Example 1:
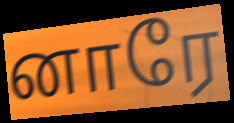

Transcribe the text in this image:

னாரே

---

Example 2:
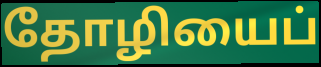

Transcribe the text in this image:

தோழியைப்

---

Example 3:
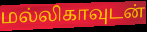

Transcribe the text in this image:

மல்லிகாவுடன்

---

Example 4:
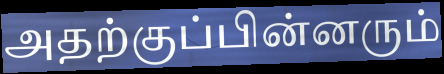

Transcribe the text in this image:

அதற்குப்பின்னரும்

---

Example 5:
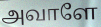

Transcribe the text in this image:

அவாளே